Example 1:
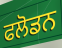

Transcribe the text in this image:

ਫਲੋਡਨ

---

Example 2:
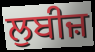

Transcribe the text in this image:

ਲੁਬੀਜ਼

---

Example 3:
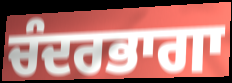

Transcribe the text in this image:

ਚੰਦਰਭਾਗਾ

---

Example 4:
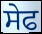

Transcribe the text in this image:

ਸੇਫ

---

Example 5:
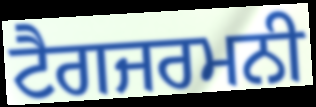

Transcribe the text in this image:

ਟੈਗਜਰਮਨੀ